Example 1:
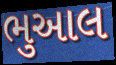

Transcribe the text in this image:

ભુઆલ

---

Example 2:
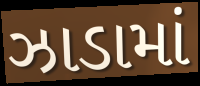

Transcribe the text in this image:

ઝાડામાં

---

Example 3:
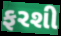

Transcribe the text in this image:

ફરશી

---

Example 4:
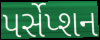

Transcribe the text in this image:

પર્સેપ્શન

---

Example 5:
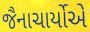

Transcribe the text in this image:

જૈનાચાર્યોએ